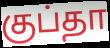
குப்தா